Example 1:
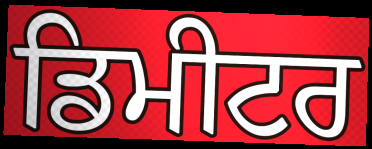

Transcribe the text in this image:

ਡਿਮੀਟਰ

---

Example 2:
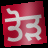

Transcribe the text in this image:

ਤੋਡ਼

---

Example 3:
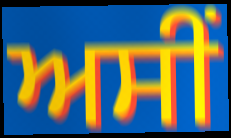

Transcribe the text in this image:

ਅਸੀੰ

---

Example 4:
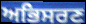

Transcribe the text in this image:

ਅਭਿਸਰਣ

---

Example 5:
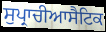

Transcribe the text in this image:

ਸੁਪ੍ਰਾਚੀਆਸੈਟਿਕ